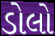
ડોલો